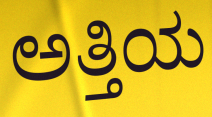
ಅತ್ತಿಯ